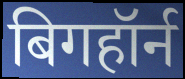
बिगहॉर्न